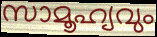
സാമൂഹ്യവും